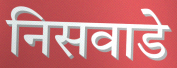
निसवाडे